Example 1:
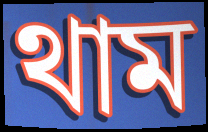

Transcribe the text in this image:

থাম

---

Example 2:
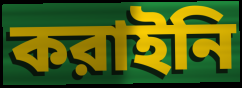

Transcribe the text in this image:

করাইনি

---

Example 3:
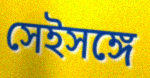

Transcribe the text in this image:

সেইসঙ্গে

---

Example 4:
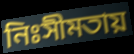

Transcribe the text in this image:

নিঃসীমতায়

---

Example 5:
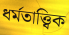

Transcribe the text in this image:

ধর্মতাত্ত্বিক